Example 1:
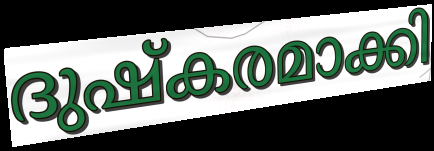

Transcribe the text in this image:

ദുഷ്കരമാക്കി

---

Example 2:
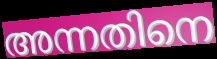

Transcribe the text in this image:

അന്നതിനെ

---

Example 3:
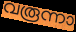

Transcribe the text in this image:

വരൂന്നാ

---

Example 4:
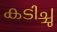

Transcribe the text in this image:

കടിച്ചു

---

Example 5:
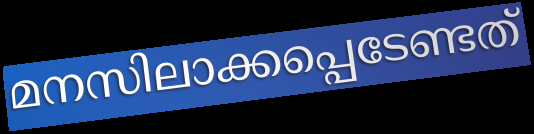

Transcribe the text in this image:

മനസിലാക്കപ്പെടേണ്ടത്